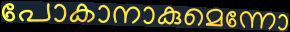
പോകാനാകുമെന്നോ